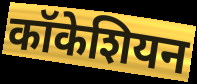
कॉकेशियन